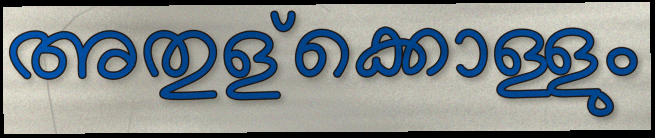
അതുള്ക്കൊള്ളും